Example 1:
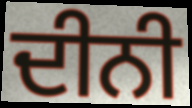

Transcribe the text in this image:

ਦੀਨੀ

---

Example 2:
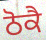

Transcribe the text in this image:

ਠੋਕੈ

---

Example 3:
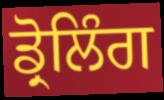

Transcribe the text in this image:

ਡ੍ਰੋਲਿੰਗ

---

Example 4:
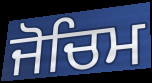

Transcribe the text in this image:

ਜੋਚਿਮ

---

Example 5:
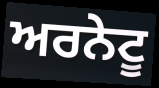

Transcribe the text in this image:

ਅਰਨੇਟੂ